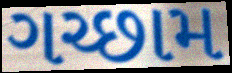
ગચ્છામ